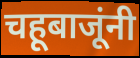
चहूबाजूंनी